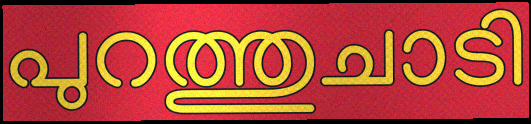
പുറത്തുചാടി